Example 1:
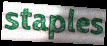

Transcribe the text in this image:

staples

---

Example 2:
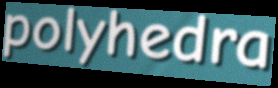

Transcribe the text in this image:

polyhedra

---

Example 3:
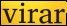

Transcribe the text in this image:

virar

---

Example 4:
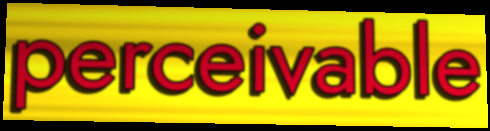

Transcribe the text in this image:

perceivable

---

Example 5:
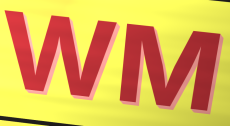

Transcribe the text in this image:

WM